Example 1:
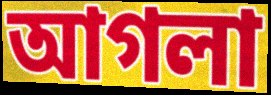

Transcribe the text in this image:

আগলা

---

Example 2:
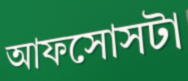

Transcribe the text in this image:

আফসোসটা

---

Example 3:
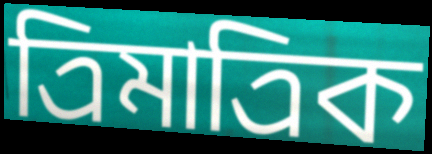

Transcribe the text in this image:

ত্রিমাত্রিক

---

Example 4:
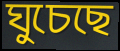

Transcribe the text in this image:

ঘুচেছে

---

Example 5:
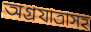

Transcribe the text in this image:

অগ্রযাত্রাসহ